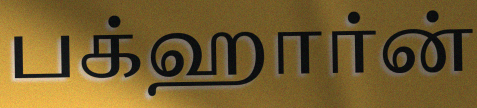
பக்ஹார்ன்